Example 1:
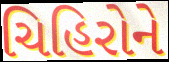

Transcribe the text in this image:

ચિહિરોને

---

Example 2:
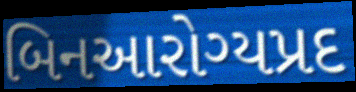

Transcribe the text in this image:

બિનઆરોગ્યપ્રદ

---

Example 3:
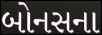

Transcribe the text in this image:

બોનસના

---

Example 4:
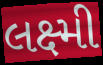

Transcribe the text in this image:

લક્ષ્મી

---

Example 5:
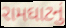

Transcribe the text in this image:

રામઘાટનું